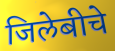
जिलेबीचे